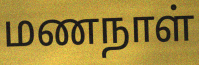
மணநாள்